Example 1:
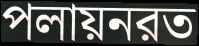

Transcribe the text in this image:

পলায়নরত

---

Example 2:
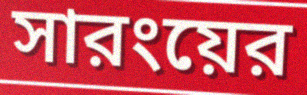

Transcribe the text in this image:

সারংয়ের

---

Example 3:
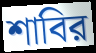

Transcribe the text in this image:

শাবির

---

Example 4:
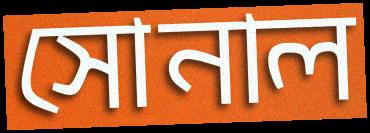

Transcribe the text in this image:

সোনাল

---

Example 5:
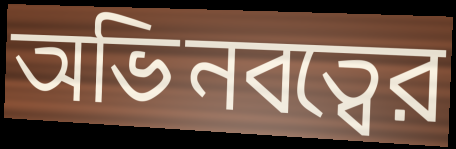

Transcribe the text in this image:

অভিনবত্বের